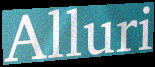
Alluri